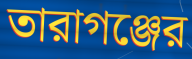
তারাগঞ্জের